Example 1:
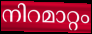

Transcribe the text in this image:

നിറമാറ്റം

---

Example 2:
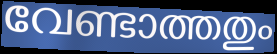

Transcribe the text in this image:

വേണ്ടാത്തതും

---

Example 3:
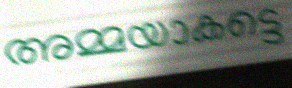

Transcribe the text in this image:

അമ്മയാകട്ടെ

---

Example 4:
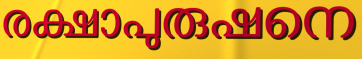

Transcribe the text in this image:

രക്ഷാപുരുഷനെ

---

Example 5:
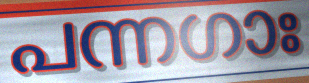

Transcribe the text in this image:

പന്നഗാഃ